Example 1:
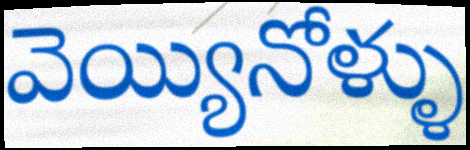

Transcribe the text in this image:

వెయ్యినోళ్ళు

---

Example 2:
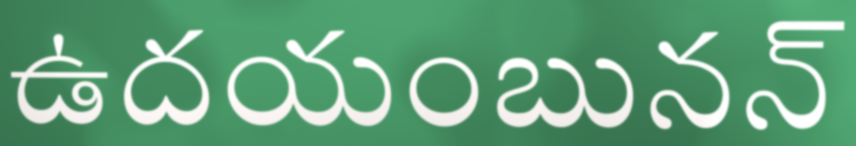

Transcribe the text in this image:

ఉదయంబునన్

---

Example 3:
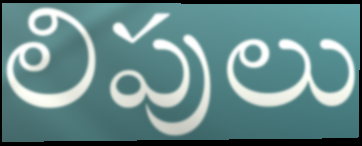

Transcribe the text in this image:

లిపులు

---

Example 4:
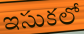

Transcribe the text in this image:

ఇసుకలో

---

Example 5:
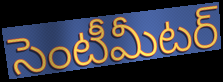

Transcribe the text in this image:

సెంటీమీటర్